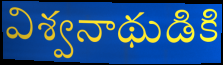
విశ్వనాథుడికి